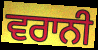
ਵਰਾਨੀ